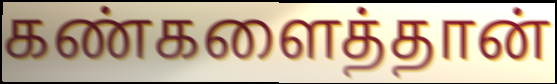
கண்களைத்தான்